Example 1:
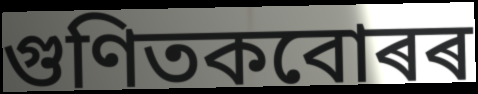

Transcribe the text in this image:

গুণিতকবোৰৰ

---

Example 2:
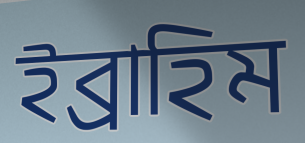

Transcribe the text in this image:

ইব্ৰাহিম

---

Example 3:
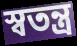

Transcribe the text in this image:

স্বতন্ত্ৰ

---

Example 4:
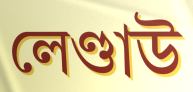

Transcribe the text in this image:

লেণ্ডাউ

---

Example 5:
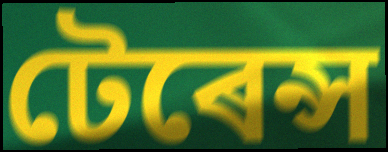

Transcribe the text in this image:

টেৰেন্স